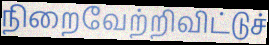
நிறைவேற்றிவிட்டுச்